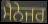
ਮੈਨੇਜਰ